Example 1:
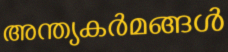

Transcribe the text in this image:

അന്ത്യകർമങ്ങൾ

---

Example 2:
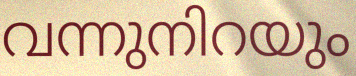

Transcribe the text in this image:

വന്നുനിറയും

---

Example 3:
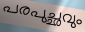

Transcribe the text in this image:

പരപുച്ഛവും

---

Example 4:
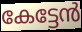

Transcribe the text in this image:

കേട്ടേൻ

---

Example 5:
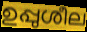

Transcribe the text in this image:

ഉപ്പുശീല